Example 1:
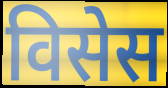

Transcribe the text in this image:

विसेस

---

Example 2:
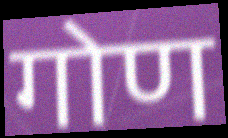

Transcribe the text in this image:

गोण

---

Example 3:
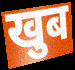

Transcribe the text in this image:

खुब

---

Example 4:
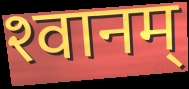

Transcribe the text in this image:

श्वानम्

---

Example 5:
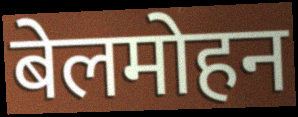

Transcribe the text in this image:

बेलमोहन